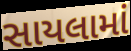
સાયલામાં